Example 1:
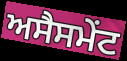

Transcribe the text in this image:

ਅਸੈਸਮੇਂਟ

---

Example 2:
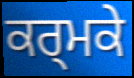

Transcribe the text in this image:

ਕਰ੍ਮਕੇ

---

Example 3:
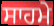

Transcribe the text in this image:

ਸਾਹਮੇ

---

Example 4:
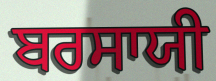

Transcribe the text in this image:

ਬਰਸਾਯੀ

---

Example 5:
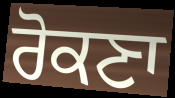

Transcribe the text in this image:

ਰੋਕਣਾ